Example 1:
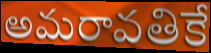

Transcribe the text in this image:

అమరావతికే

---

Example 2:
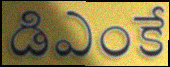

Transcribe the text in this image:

డిఎంకే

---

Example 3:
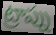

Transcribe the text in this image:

ట్రాప్ను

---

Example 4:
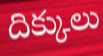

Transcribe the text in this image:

దిక్కులు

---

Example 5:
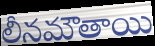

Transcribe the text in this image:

లీనమౌతాయి